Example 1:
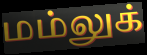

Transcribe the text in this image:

மம்லுக்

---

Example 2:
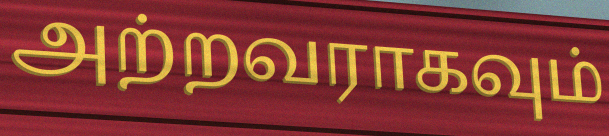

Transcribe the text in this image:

அற்றவராகவும்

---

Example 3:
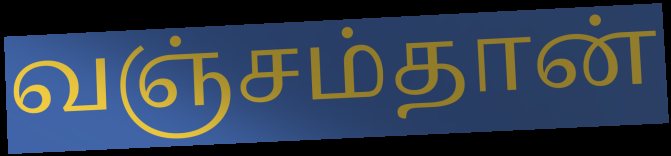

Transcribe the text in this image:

வஞ்சம்தான்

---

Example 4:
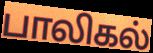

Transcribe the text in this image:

பாலிகல்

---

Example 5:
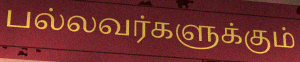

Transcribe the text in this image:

பல்லவர்களுக்கும்